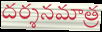
దర్శనమాత్ర